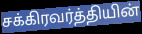
சக்கிரவர்த்தியின்